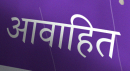
आवाहित